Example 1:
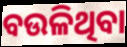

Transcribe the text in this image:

ବଉଳିଥିବା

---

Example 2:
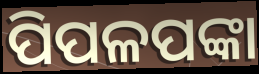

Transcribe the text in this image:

ପିପଳପଙ୍କା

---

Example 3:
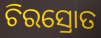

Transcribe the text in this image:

ଚିରସ୍ରୋତ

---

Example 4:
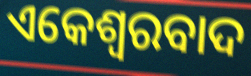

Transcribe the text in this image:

ଏକେଶ୍ୱରବାଦ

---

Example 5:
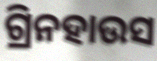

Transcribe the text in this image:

ଗ୍ରିନହାଉସ